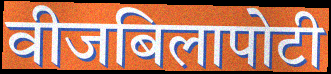
वीजबिलापोटी